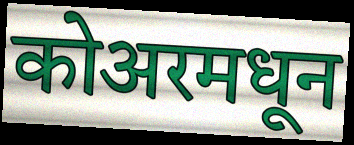
कोअरमधून